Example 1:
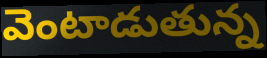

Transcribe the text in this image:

వెంటాడుతున్న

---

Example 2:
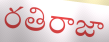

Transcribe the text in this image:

రతిరాజా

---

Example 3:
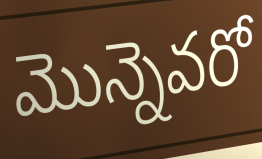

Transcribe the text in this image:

మొన్నెవరో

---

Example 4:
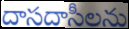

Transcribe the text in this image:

దాసదాసీలను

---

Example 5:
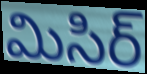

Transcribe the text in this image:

మిసిర్